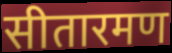
सीतारमण